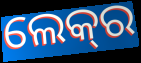
ଲେକ୍‍ର